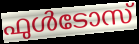
ഫുൾടോസ്